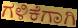
ಗಳಿಕೆಗಾಗಿ